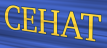
CEHAT